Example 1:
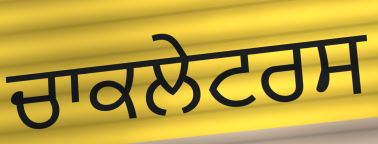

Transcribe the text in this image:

ਚਾਕਲੇਟਰਸ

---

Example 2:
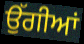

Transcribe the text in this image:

ਉੱਗੀਆਂ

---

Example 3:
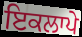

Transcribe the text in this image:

ਇਕਲਾਪੇ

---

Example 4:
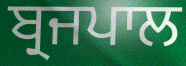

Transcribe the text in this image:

ਬ੍ਰਜਪਾਲ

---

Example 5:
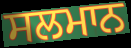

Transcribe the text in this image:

ਸਲਮਾਨ